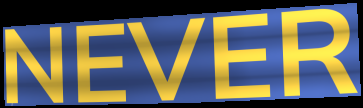
NEVER